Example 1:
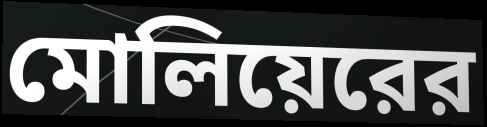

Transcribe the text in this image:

মোলিয়েরের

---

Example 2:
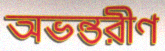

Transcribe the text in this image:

অভন্তরীণ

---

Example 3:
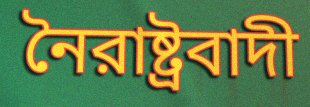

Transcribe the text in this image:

নৈরাষ্ট্রবাদী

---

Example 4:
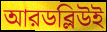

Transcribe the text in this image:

আরডব্লিউই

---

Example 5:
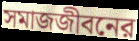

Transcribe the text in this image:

সমাজজীবনের